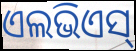
ଏଲଭିଏସ୍